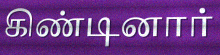
கிண்டினார்